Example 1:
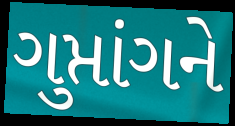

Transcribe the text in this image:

ગુપ્તાંગને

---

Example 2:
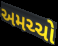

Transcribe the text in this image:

અમચ્ચો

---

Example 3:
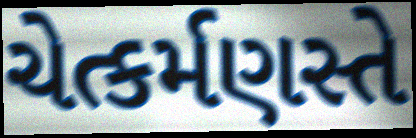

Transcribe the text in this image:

ચેત્કર્મણસ્તે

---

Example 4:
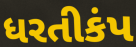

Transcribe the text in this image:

ધરતીકંપ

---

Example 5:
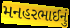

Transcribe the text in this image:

મનહરભાઈનું